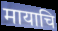
मायाचि